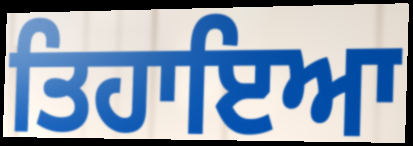
ਤਿਹਾਇਆ